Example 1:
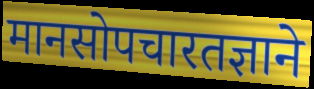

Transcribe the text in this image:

मानसोपचारतज्ञाने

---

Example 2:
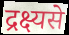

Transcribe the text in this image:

द्रक्ष्यसे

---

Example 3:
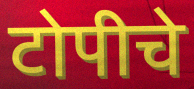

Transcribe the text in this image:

टोपीचे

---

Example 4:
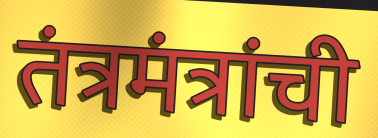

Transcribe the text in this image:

तंत्रमंत्रांची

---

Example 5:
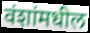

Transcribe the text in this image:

वंशांमधील